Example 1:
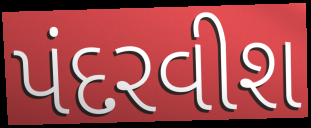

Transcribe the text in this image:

પંદરવીશ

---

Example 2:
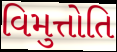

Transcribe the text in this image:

વિમુત્તોતિ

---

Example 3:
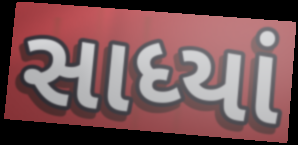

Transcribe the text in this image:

સાધ્યાં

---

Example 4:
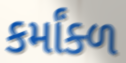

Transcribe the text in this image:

કર્માંક્ળ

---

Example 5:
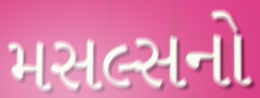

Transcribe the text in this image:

મસલ્સનો